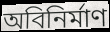
অবিনির্মাণ